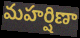
మహర్షిణా